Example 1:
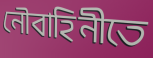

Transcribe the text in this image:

নৌবাহিনীতে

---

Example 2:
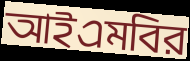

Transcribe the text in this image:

আইএমবির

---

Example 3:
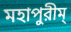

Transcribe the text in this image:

মহাপুরীম্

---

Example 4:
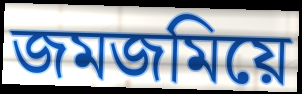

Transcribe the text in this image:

জমজমিয়ে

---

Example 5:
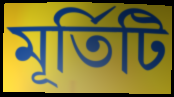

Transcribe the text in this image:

মূর্তিটি